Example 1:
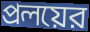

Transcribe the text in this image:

প্রলয়ের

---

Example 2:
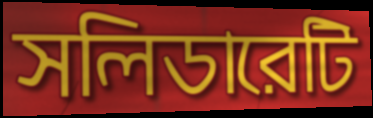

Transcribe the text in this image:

সলিডারেটি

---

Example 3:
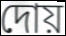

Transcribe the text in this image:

দোয়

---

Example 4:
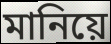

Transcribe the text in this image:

মানিয়ে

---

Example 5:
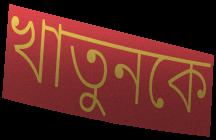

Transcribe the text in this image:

খাতুনকে